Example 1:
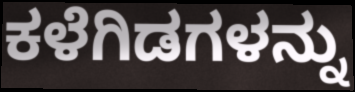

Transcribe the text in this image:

ಕಳೆಗಿಡಗಳನ್ನು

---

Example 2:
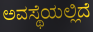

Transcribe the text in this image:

ಅವಸ್ಥೆಯಲ್ಲಿದೆ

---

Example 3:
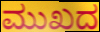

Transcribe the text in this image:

ಮುಖದ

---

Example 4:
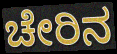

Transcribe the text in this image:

ಚೇರಿನ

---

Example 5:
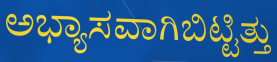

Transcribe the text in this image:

ಅಭ್ಯಾಸವಾಗಿಬಿಟ್ಟಿತ್ತು